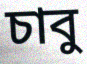
চাবু